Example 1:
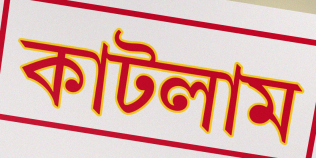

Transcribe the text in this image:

কাটলাম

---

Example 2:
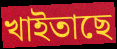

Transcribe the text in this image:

খাইতাছে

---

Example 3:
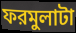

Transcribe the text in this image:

ফরমুলাটা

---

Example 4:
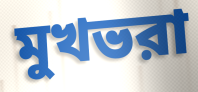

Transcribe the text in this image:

মুখভরা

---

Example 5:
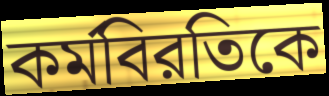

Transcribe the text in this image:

কর্মবিরতিকে